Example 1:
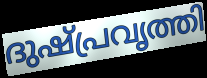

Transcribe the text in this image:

ദുഷ്പ്രവൃത്തി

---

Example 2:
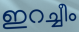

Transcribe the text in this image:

ഇറച്ചീം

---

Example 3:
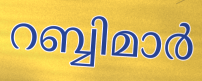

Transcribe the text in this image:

റബ്ബിമാർ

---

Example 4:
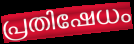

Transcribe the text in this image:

പ്രതിഷേധം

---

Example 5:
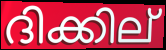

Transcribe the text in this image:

ദിക്കില്